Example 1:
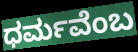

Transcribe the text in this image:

ಧರ್ಮವೆಂಬ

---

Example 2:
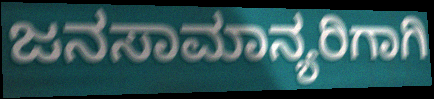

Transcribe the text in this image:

ಜನಸಾಮಾನ್ಯರಿಗಾಗಿ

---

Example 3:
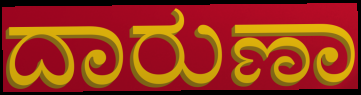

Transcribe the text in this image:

ದಾರುಣಾ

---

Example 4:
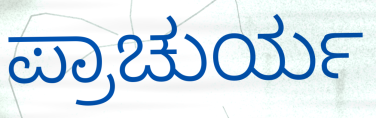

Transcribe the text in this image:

ಪ್ರಾಚುರ್ಯ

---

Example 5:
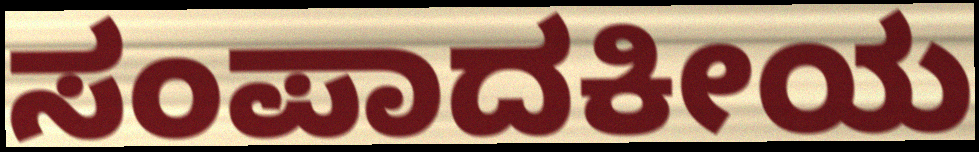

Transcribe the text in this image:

ಸಂಪಾದಕೀಯ